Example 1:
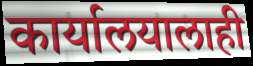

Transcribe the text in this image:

कार्यालयालाही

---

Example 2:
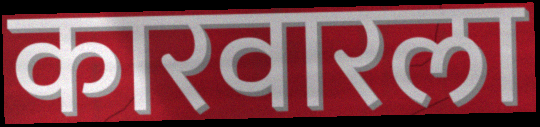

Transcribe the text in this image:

कारवारला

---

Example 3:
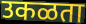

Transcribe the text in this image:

उकळता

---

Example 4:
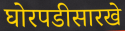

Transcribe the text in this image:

घोरपडीसारखे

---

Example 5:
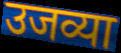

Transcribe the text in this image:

उजव्या